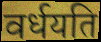
वर्धयति